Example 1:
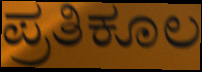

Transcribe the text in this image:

ಪ್ರತಿಕೂಲ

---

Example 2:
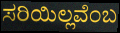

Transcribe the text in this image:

ಸರಿಯಿಲ್ಲವೆಂಬ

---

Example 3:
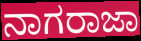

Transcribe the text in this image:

ನಾಗರಾಜಾ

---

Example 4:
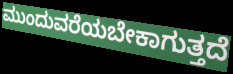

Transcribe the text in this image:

ಮುಂದುವರೆಯಬೇಕಾಗುತ್ತದೆ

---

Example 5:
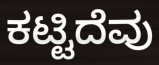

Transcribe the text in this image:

ಕಟ್ಟಿದೆವು